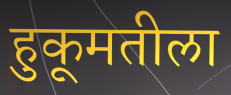
हुकूमतीला